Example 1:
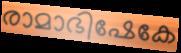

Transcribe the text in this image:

രാമാഭിഷേകേ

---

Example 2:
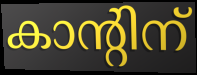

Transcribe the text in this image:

കാന്റിന്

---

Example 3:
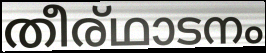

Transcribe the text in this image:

തീര്ഥാടനം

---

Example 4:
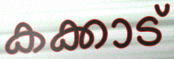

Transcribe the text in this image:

കക്കാട്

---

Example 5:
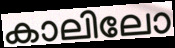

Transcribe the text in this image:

കാലിലോ